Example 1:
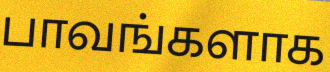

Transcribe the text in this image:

பாவங்களாக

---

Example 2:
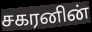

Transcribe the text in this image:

சகரனின்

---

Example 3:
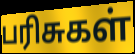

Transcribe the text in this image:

பரிசுகள்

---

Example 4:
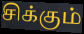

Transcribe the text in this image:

சிக்கும்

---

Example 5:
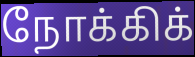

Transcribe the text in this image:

நோக்கிக்